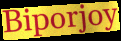
Biporjoy